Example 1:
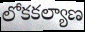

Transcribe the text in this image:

లోకకల్యాణ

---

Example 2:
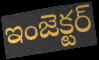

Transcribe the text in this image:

ఇంజెక్టర్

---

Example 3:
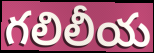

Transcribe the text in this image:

గలిలీయ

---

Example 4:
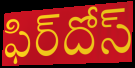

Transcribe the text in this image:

ఫిర్‌దోస్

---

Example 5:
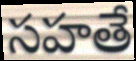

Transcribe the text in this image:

సహతే